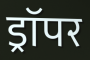
ड्रॉपर